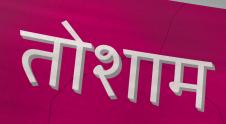
तोशाम